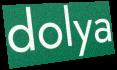
dolya